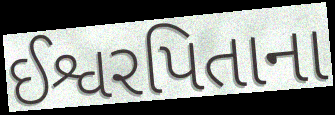
ઈશ્વરપિતાના